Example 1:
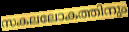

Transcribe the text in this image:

സകലലോകത്തിനും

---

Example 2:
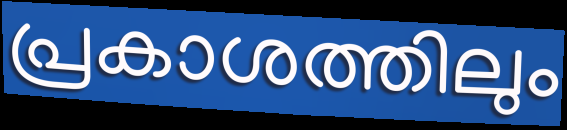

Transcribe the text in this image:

പ്രകാശത്തിലും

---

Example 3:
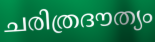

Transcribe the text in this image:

ചരിത്രദൗത്യം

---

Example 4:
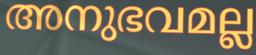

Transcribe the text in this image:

അനുഭവമല്ല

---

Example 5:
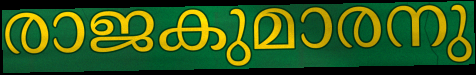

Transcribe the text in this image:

രാജകുമാരനു